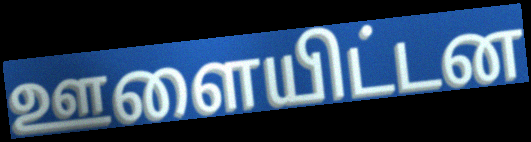
ஊளையிட்டன